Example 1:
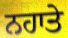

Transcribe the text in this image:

ਨਹਾਤੇ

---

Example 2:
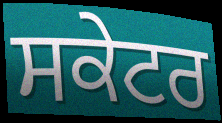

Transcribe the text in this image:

ਸਕੇਟਰ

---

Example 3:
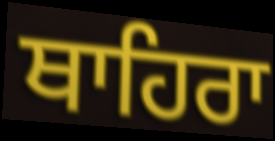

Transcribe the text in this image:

ਥਾਹਿਰਾ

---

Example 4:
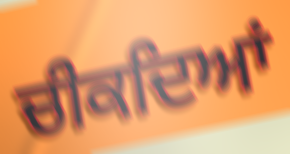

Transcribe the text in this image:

ਚੀਕਦਿਆਂ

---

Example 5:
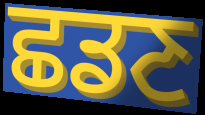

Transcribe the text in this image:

ਛਡਣ